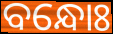
ବନ୍ଧୋଃ